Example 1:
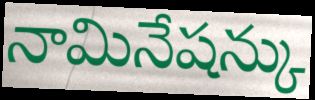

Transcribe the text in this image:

నామినేషన్కు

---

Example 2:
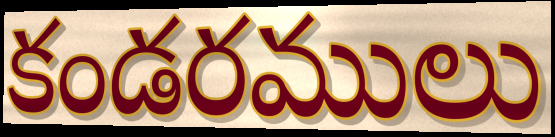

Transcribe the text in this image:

కండరములు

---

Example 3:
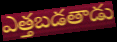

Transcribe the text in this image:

ఎత్తబడతాడు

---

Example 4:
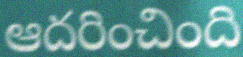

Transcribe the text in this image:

ఆదరించింది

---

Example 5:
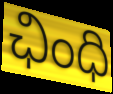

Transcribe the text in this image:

ఛింధి